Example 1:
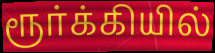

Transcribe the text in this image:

ரூர்க்கியில்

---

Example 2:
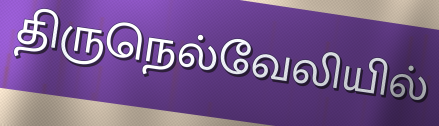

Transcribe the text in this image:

திருநெல்வேலியில்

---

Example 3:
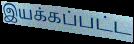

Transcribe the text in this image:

இயக்கப்பட்ட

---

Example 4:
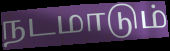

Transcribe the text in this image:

நடமாடும்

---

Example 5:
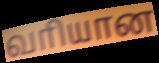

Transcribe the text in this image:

வரியான